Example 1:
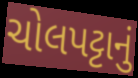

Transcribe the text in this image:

ચોલપટ્ટાનું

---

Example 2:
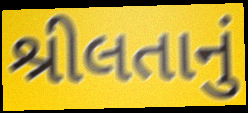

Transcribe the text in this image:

શ્રીલતાનું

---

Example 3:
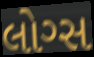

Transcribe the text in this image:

લોગ્સ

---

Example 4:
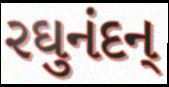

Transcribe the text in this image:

રઘુનંદન્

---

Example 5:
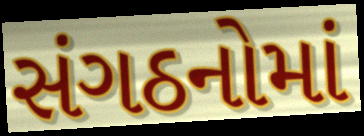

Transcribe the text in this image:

સંગઠનોમાં